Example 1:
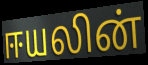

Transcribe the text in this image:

ஈயலின்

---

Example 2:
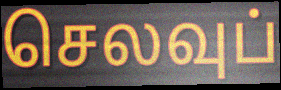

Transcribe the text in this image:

செலவுப்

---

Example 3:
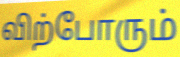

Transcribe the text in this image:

விற்போரும்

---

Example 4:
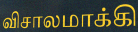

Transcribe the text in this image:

விசாலமாக்கி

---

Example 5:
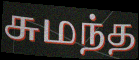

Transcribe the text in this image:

சுமந்த